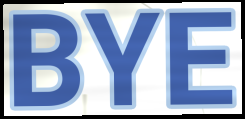
BYE